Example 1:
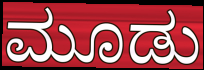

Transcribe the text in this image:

ಮೂಡು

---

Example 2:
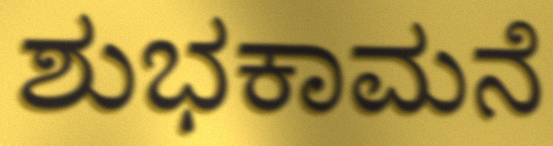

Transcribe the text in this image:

ಶುಭಕಾಮನೆ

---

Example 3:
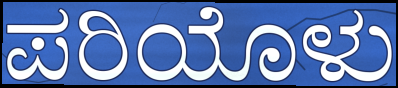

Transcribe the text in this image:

ಪರಿಯೊಳು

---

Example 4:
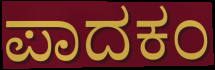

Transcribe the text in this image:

ಪಾದಕಂ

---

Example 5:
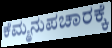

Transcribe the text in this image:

ಕೆಮ್ಮನುಪಚಾರಕ್ಕೆ